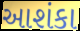
આશંકા